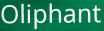
Oliphant